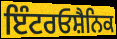
ਇੰਟਰਓਸ਼ੈਨਿਕ